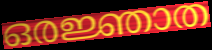
ഒരജ്ഞാത